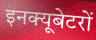
इनक्यूबेटरों